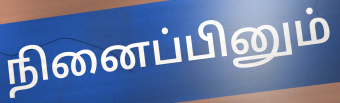
நினைப்பினும்